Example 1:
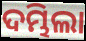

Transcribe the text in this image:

ଦମ୍ଭିଲା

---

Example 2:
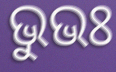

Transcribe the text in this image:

ଭୁଭଃ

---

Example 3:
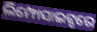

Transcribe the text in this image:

ଲିମ୍ଫୋସାଇଟ୍ସରେ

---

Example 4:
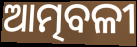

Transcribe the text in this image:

ଆତ୍ମବଳୀ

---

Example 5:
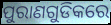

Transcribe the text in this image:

ପୁରାଣଗୁଡିକରେ